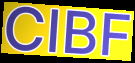
CIBF